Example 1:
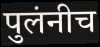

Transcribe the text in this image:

पुलंनीच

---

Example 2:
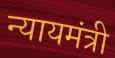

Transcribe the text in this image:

न्यायमंत्री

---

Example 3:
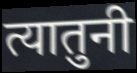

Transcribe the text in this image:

त्यातुनी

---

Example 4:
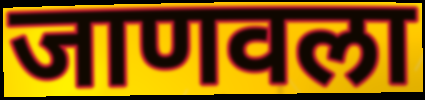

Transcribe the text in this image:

जाणवला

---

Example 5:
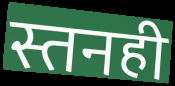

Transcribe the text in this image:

स्तनही